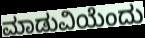
ಮಾಡುವಿಯೆಂದು